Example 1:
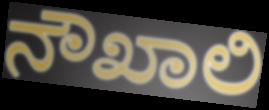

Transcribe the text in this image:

ನೌಖಾಲಿ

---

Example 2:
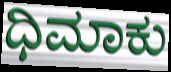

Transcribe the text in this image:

ಧಿಮಾಕು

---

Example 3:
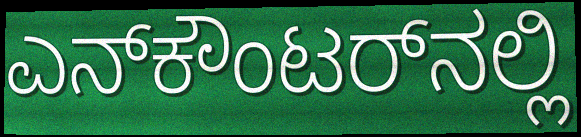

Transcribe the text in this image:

ಎನ್‌ಕೌಂಟರ್‌ನಲ್ಲಿ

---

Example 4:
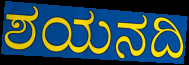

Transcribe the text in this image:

ಶಯನದಿ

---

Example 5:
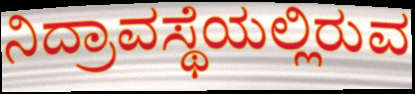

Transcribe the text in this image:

ನಿದ್ರಾವಸ್ಥೆಯಲ್ಲಿರುವ